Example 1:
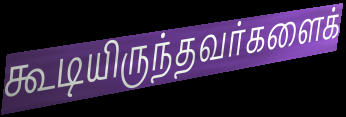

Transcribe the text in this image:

கூடியிருந்தவர்களைக்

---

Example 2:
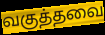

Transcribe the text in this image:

வகுத்தவை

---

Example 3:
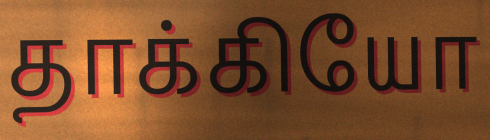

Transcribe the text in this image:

தாக்கியோ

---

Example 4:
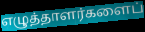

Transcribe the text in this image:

எழுத்தாளர்களைப்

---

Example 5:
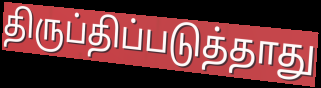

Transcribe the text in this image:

திருப்திப்படுத்தாது